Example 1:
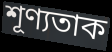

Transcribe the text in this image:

শূণ্যতাক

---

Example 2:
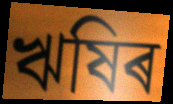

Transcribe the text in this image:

ঋষিৰ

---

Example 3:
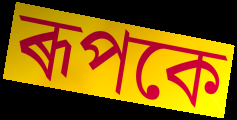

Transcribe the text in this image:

ৰূপকে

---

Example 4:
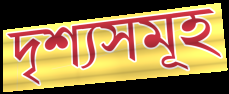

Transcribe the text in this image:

দৃশ্যসমূহ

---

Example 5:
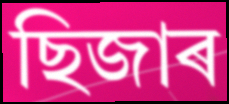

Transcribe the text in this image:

ছিজাৰ